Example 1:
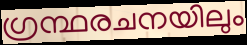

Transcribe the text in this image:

ഗ്രന്ഥരചനയിലും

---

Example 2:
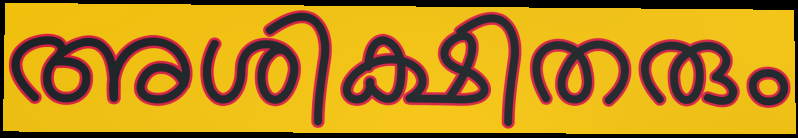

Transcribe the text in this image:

അശിക്ഷിതരും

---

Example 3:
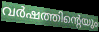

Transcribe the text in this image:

വർഷത്തിന്റെയും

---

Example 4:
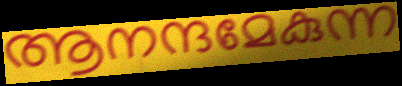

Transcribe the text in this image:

ആനന്ദമേകുന്ന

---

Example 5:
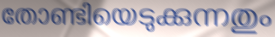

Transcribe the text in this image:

തോണ്ടിയെടുക്കുന്നതും